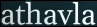
athavla